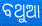
ବଥୁଆ